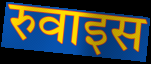
रुवाइस